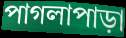
পাগলাপাড়া